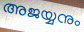
അജയ്യനും